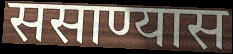
ससाण्यास